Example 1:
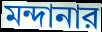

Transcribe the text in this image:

মন্দানার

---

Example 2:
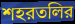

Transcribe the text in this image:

শহরতলির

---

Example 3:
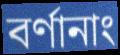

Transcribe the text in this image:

বর্ণানাং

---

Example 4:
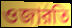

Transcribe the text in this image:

ওজারতি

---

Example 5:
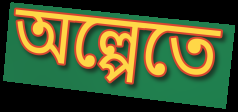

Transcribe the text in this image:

অল্পেতে